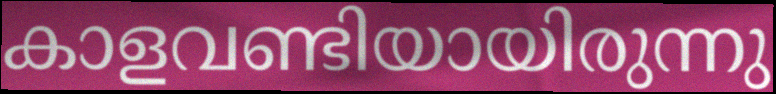
കാളവണ്ടിയായിരുന്നു